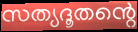
സത്യദൂതന്റെ